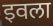
इवला